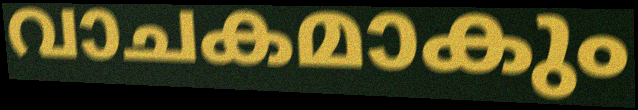
വാചകമാകും